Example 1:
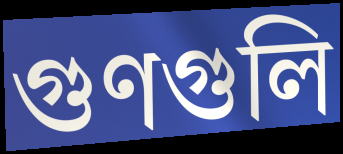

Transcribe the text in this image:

গুণগুলি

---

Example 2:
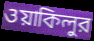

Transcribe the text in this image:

ওয়াকিলুর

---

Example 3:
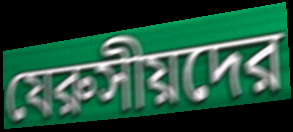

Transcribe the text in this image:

যেরুসীয়দের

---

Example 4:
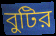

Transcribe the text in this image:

বুটির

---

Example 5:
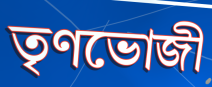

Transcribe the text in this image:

তৃণভোজী